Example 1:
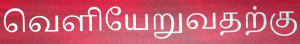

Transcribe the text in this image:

வெளியேறுவதற்கு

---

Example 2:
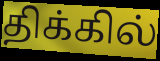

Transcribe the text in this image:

திக்கில்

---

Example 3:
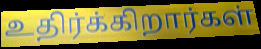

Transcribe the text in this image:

உதிர்க்கிறார்கள்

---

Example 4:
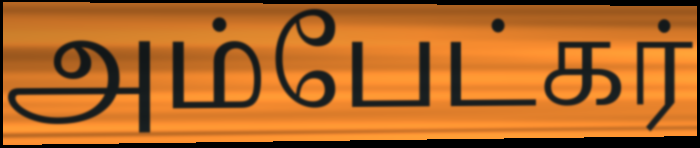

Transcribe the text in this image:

அம்பேட்கர்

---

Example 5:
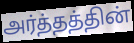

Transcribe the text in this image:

அர்த்தத்தின்